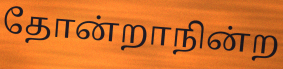
தோன்றாநின்ற